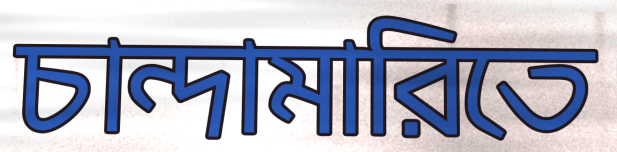
চান্দামারিতে